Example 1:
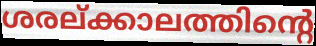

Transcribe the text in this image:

ശരല്ക്കാലത്തിന്റെ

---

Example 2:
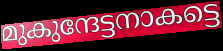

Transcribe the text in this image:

മുകുന്ദേട്ടനാകട്ടെ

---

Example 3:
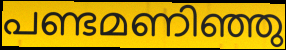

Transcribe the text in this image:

പണ്ടമണിഞ്ഞു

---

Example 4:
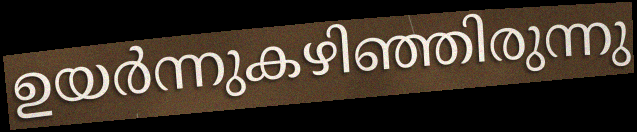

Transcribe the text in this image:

ഉയർന്നുകഴിഞ്ഞിരുന്നു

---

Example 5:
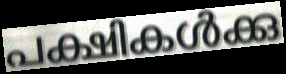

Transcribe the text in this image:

പക്ഷികൾക്കു